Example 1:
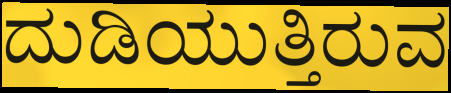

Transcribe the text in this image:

ದುಡಿಯುತ್ತಿರುವ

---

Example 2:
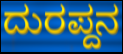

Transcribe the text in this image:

ದುರಪ್ದನ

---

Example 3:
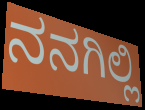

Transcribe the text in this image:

ನನಗಿಲ್ಲಿ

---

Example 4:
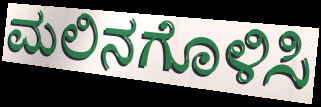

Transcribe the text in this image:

ಮಲಿನಗೊಳಿಸಿ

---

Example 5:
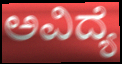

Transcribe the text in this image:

ಅವಿದ್ಯೆ